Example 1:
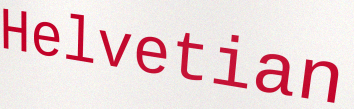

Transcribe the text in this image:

Helvetian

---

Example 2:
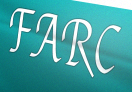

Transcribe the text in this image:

FARC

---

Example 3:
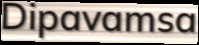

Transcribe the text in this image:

Dipavamsa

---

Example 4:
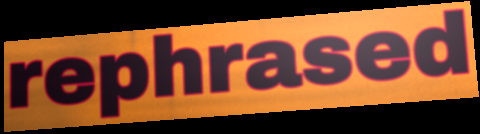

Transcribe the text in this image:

rephrased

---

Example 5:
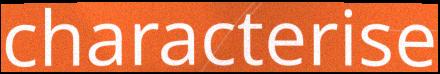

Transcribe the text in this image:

characterise